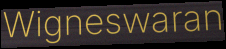
Wigneswaran